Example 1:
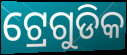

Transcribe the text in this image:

ଟ୍ରେଗୁଡିକ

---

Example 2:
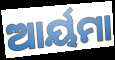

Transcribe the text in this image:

ଆର୍ୟମା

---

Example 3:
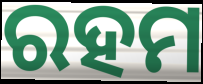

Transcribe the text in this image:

ରହମ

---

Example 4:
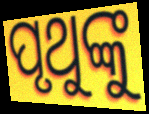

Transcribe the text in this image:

ପୃଥୁଙ୍କୁ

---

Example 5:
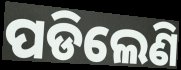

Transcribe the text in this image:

ପଡିଲେଣି